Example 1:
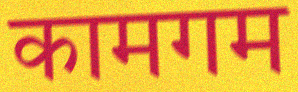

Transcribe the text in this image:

कामगम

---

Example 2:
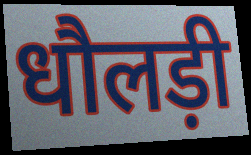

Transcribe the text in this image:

धौलड़ी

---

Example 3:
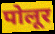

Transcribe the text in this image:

पोलूर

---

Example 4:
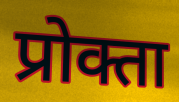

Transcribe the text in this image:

प्रोक्ता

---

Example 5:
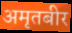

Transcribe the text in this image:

अमृतबीर